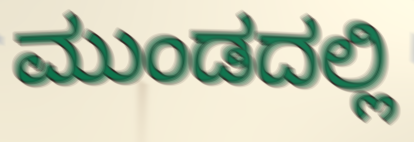
ಮುಂಡದಲ್ಲಿ